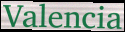
Valencia